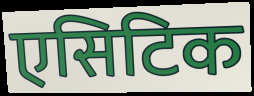
एसिटिक